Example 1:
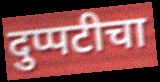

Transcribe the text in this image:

दुप्पटीचा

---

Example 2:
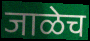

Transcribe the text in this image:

जाळेच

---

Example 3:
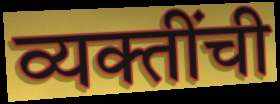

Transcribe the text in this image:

व्‍यक्‍तींची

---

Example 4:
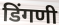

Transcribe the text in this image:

डिंगणी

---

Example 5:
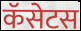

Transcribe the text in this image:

कॅसेटस